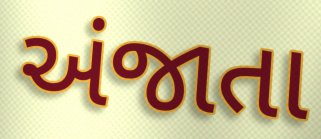
અંજાતા